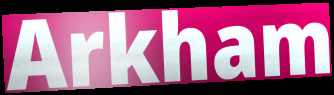
Arkham